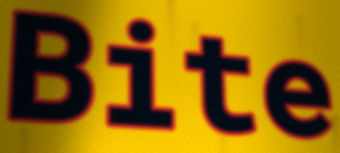
Bite